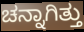
ಚನ್ನಾಗಿತ್ತು